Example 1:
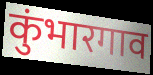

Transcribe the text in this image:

कुंभारगाव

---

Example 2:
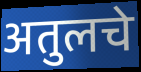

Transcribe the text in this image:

अतुलचे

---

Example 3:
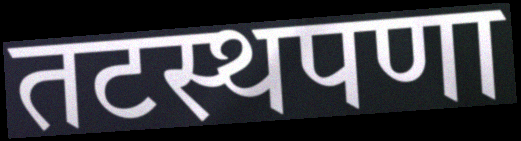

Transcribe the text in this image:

तटस्थपणा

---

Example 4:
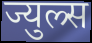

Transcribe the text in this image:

ज्युल्स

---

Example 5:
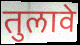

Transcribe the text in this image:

तुलावे